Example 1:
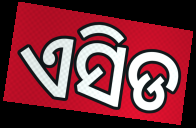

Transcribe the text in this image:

ଏସିଡ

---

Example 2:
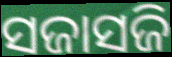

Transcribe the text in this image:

ସଜାସଜି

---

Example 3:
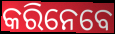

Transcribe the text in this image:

କରିନେବେ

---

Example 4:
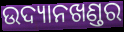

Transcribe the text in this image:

ଉଦ୍ୟାନଖଣ୍ଡର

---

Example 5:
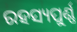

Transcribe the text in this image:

ରହସ୍ୟପୁର୍ଣ୍ଣ